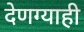
देणग्याही